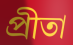
প্রীতা